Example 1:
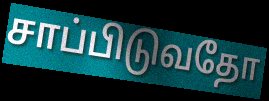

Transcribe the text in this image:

சாப்பிடுவதோ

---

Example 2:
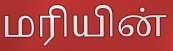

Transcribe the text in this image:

மரியின்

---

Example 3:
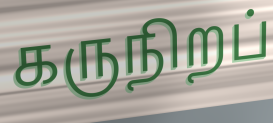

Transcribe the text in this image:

கருநிறப்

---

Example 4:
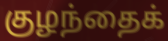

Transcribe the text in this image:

குழந்தைக்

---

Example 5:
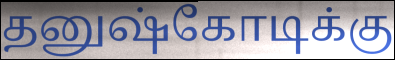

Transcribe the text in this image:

தனுஷ்கோடிக்கு